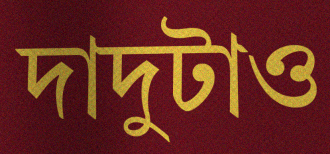
দাদুটাও